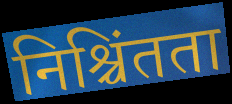
निश्चिंतता